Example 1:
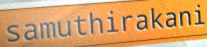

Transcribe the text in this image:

samuthirakani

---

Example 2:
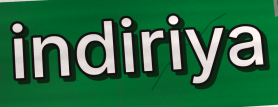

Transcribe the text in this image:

indiriya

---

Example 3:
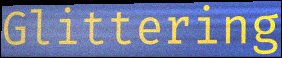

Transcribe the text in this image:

Glittering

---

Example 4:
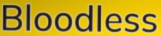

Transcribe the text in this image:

Bloodless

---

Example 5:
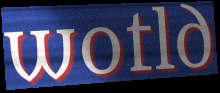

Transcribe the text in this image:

wotld